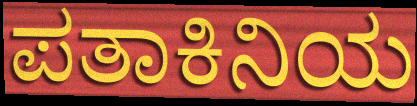
ಪತಾಕಿನಿಯ